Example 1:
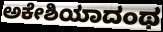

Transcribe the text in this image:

ಅಕೇಶಿಯಾದಂಥ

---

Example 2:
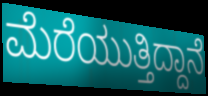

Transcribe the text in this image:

ಮೆರೆಯುತ್ತಿದ್ದಾನೆ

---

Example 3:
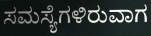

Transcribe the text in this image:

ಸಮಸ್ಯೆಗಳಿರುವಾಗ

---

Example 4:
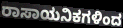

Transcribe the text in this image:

ರಾಸಾಯನಿಕಗಳಿಂದ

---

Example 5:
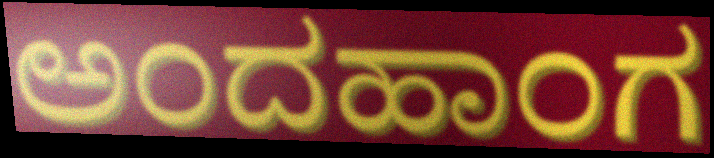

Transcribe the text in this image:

ಅಂದಹಾಂಗ